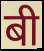
बी